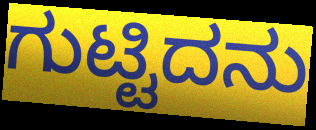
ಗುಟ್ಟಿದನು